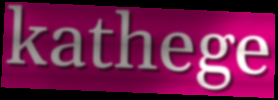
kathege